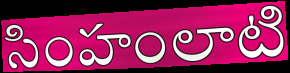
సింహంలాటి